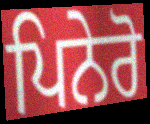
ਪਿਨੇਰੋ